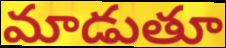
మాడుతూ